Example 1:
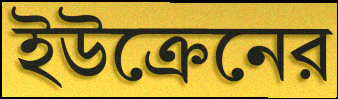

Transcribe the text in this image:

ইউক্রেনের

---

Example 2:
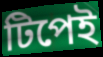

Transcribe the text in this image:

টিপেই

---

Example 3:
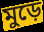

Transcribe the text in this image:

মুড়ে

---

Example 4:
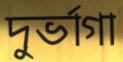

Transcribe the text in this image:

দুর্ভাগা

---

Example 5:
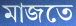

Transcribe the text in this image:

মাজতে